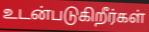
உடன்படுகிறீர்கள்